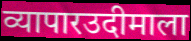
व्यापारउदीमाला